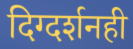
दिग्दर्शनही